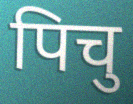
पिचु